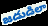
జడుడిలా